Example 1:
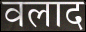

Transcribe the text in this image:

वलाद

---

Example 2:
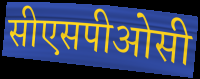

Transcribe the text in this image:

सीएसपीओसी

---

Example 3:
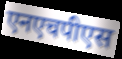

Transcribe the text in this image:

एनएचपीएस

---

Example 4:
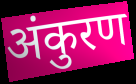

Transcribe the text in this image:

अंकुरण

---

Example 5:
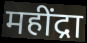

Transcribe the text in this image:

महींद्रा